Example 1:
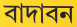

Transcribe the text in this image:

বাদাবন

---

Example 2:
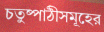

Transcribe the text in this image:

চতুষ্পাঠীসমূহের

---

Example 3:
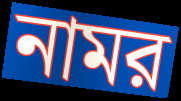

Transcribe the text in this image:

নামর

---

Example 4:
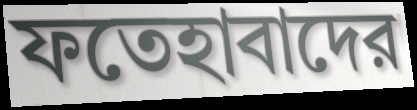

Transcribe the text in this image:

ফতেহাবাদের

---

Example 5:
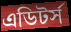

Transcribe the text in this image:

এডিটর্স